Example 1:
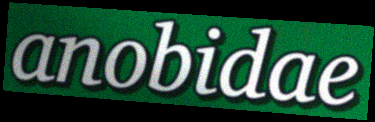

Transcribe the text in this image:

anobidae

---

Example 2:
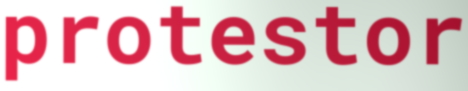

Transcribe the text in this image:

protestor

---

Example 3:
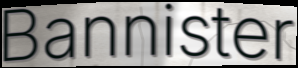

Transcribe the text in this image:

Bannister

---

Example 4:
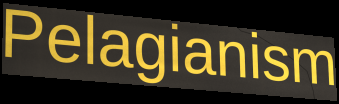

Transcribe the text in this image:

Pelagianism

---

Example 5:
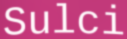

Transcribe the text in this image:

Sulci